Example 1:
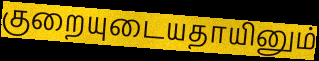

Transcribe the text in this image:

குறையுடையதாயினும்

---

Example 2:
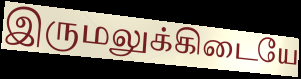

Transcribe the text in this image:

இருமலுக்கிடையே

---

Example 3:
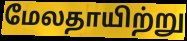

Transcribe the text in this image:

மேலதாயிற்று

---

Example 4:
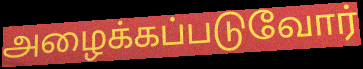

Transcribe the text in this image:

அழைக்கப்படுவோர்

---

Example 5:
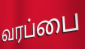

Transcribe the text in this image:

வரப்பை